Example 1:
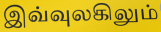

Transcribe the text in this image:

இவ்வுலகிலும்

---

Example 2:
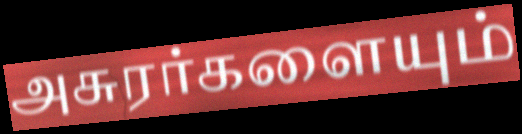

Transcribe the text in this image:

அசுரர்களையும்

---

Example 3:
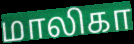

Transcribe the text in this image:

மாலிகா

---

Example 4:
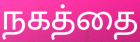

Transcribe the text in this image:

நகத்தை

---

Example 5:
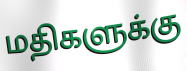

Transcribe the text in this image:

மதிகளுக்கு